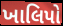
ખાલિપો